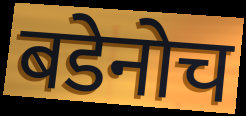
बडेनोच